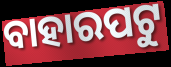
ବାହାରପଟୁ